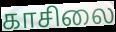
காசிலை